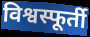
विश्वस्फूर्ती